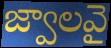
జ్వాలవై